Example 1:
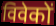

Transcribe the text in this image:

विवेकों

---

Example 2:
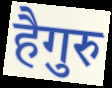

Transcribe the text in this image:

हैगुरु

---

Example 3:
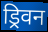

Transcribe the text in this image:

ड्रिवन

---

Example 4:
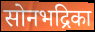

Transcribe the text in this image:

सोनभद्रिका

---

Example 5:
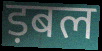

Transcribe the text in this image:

ड़बल